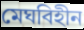
মেঘবিহীন